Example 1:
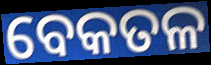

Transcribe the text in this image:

ବେକତଳ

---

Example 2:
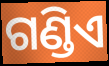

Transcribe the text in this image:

ଗଣ୍ଡିଏ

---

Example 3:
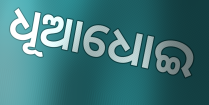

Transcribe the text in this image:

ଧୂଆଧୋଇ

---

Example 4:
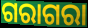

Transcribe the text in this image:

ଗରାଗରା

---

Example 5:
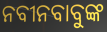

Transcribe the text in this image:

ନବୀନବାବୁଙ୍କ